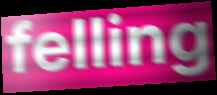
felling